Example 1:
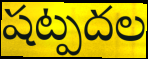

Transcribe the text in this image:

షట్పదల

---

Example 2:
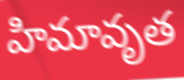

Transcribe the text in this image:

హిమావృత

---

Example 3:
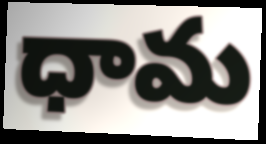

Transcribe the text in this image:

ధామ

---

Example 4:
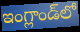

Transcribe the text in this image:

ఇంగ్లాండ్‌లో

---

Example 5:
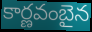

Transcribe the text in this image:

కార్ణవంబైన